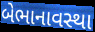
બેભાનાવસ્થા